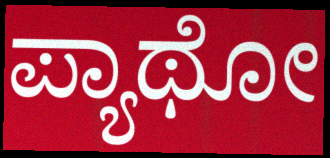
ಪ್ಯಾಥೋ